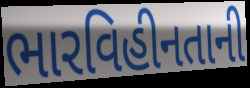
ભારવિહીનતાની